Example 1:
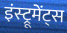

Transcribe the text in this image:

इंस्‍ट्रूमेंट्स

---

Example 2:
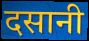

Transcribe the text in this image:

दसानी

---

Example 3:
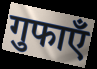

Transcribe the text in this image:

गुफाएँ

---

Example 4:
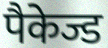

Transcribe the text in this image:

पैकेज्ड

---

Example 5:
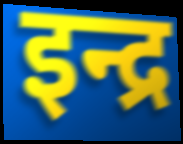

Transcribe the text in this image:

इन्द्र